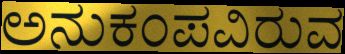
ಅನುಕಂಪವಿರುವ